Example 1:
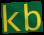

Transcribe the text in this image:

kb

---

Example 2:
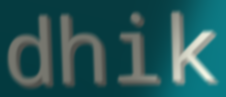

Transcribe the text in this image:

dhik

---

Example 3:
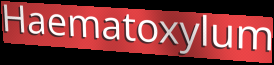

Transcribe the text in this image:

Haematoxylum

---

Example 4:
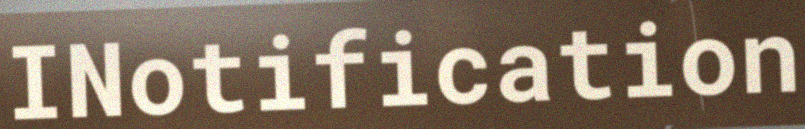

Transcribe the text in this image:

INotification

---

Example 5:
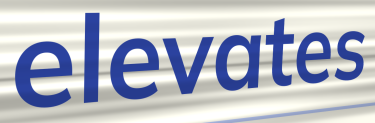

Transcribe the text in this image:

elevates